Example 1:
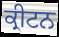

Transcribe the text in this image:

ਕ੍ਰੀਟਨ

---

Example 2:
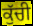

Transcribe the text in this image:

ਕੁੱਚੀ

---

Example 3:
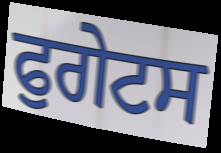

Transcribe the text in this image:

ਫੁਗੇਟਸ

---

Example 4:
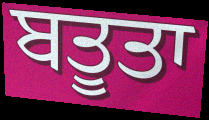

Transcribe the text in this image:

ਬਤੂਤਾ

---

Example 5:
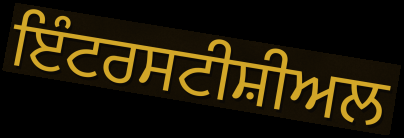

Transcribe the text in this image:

ਇੰਟਰਸਟੀਸ਼ੀਅਲ